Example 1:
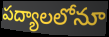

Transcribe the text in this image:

పద్యాలలోనూ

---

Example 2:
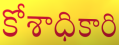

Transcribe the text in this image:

కోశాధికారి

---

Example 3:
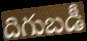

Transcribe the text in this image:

దిగుబడీ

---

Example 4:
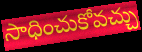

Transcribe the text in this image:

సాధించుకోవచ్చు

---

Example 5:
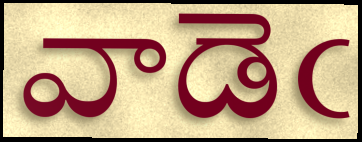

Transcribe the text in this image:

వాడెఁ